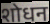
शोधन